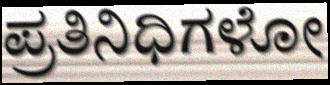
ಪ್ರತಿನಿಧಿಗಳೋ